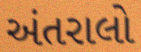
અંતરાલો